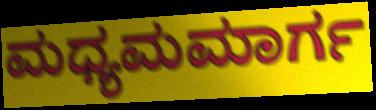
ಮಧ್ಯಮಮಾರ್ಗ